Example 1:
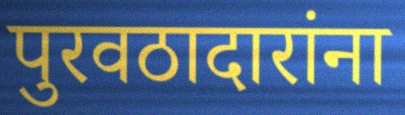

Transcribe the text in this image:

पुरवठादारांना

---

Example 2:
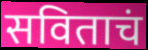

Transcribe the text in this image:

सविताचं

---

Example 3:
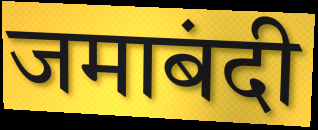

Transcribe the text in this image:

जमाबंदी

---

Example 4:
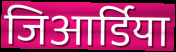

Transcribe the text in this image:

जिआर्डिया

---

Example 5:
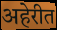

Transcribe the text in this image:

अहेरीत